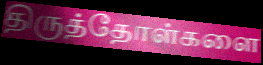
திருத்தோள்களை